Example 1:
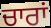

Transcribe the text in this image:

ਚਾਰਾਂ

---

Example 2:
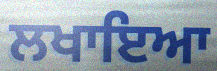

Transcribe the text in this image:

ਲਖਾਇਆ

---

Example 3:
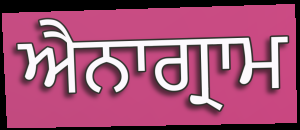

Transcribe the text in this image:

ਐਨਾਗ੍ਰਾਮ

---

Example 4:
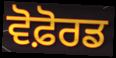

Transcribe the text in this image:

ਵੋਫ਼ੋਰਡ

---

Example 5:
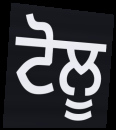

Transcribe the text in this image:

ਟੋਲੂ